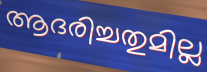
ആദരിച്ചതുമില്ല